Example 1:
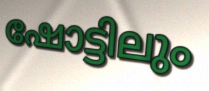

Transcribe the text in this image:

ഷോട്ടിലും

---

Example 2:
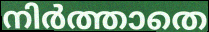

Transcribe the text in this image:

നിർത്താതെ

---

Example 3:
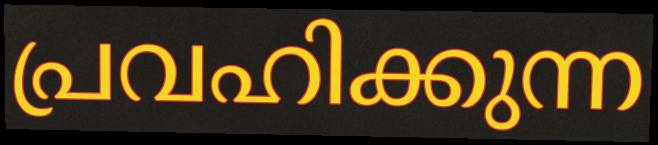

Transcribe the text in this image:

പ്രവഹിക്കുന്ന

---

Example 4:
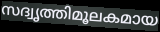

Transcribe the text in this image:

സദ്വൃത്തിമൂലകമായ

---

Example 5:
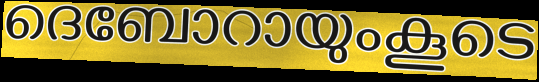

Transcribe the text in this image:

ദെബോറായുംകൂടെ